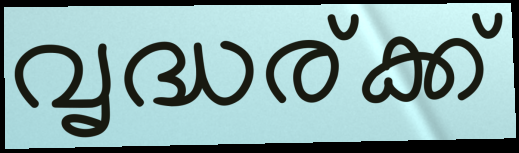
വൃദ്ധര്ക്ക്